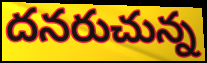
దనరుచున్న